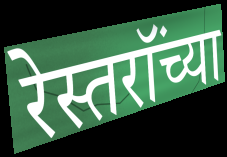
रेस्तरॉंच्या